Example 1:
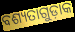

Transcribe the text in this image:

ବଶ୍ୟତାଗୁଡ଼ାକ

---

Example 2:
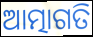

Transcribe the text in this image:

ଆତ୍ମାଗତି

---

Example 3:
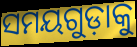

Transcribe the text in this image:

ସମୟଗୁଡ଼ାକୁ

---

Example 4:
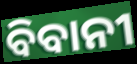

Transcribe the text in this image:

ବିବାନୀ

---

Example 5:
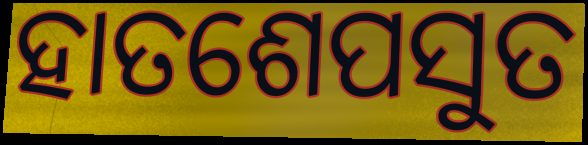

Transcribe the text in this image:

ହାତଶେପସୁତ